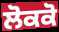
ਲੋਕਕੋ